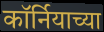
कॉर्नियाच्या